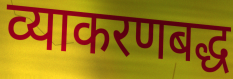
व्याकरणबद्ध